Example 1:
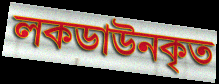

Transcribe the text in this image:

লকডাউনকৃত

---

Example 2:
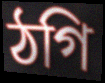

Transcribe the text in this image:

ঠগি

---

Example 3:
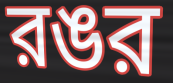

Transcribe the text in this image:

রঙর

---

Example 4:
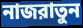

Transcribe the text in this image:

নাজরাতুন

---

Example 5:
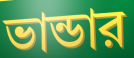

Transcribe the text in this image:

ভান্ডার